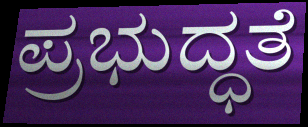
ಪ್ರಭುದ್ಧತೆ